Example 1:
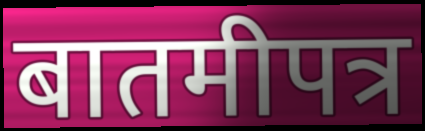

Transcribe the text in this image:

बातमीपत्र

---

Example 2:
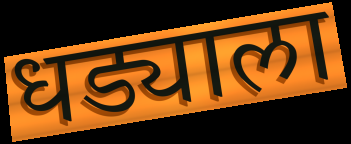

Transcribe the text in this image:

धड्याला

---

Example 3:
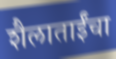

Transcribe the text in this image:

शैलाताईंचा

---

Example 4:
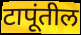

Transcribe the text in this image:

टापूंतील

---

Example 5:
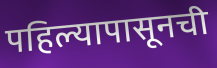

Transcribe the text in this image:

पहिल्यापासूनची